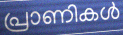
പ്രാണികൾ